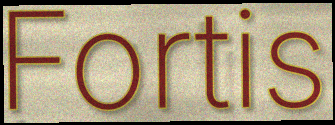
Fortis